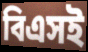
বিএসই